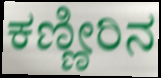
ಕಣ್ಣೀರಿನ